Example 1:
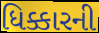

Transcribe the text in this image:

ધિક્કારની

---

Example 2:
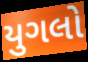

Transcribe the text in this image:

યુગલો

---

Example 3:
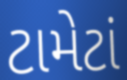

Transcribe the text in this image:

ટામેટાં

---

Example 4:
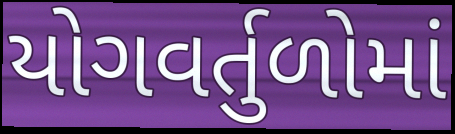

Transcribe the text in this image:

યોગવર્તુળોમાં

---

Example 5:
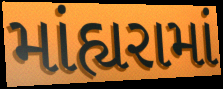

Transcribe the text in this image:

માંહ્યરામાં